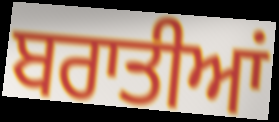
ਬਰਾਤੀਆਂ